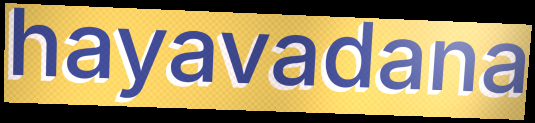
hayavadana